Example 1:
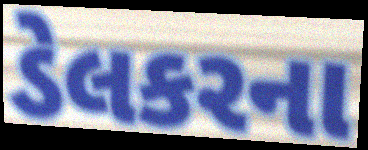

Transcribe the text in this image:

ડેલકરના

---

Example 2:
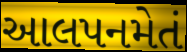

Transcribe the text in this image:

આલપનમેતં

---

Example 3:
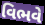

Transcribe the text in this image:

વિભવે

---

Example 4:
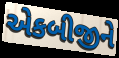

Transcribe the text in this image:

એકબીજીને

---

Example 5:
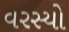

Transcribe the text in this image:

વરસ્યો